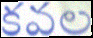
కవల